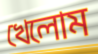
খেলোম